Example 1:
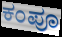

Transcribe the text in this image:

ಕಂಪೂ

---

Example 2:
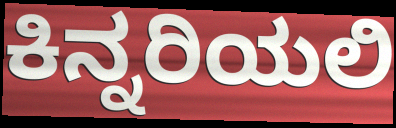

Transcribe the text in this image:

ಕಿನ್ನರಿಯಲಿ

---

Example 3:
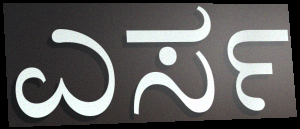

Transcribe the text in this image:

ಎರ್ಸ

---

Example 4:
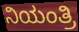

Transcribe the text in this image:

ನಿಯಂತ್ರಿ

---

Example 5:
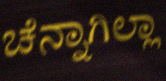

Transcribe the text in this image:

ಚೆನ್ನಾಗಿಲ್ಲಾ